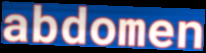
abdomen